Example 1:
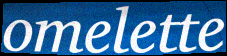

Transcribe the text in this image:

omelette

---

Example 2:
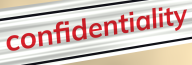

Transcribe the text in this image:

confidentiality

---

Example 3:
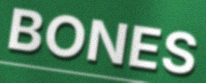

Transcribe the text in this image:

BONES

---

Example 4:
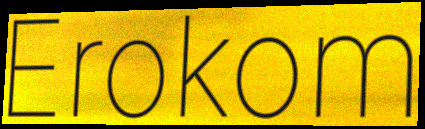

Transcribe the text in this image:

Erokom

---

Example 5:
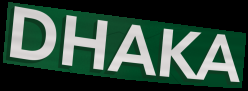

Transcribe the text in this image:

DHAKA